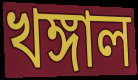
খঙ্গাল